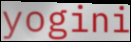
yogini